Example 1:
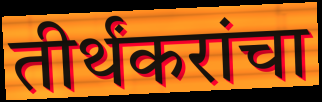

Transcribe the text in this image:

तीर्थंकरांचा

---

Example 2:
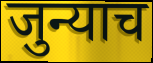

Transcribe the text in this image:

जुन्याच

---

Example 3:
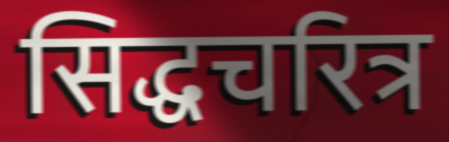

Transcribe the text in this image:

सिद्धचरित्र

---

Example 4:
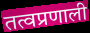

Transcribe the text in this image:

तत्वप्रणाली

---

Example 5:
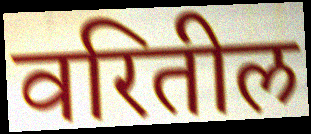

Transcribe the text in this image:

वरितील